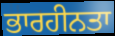
ਭਾਰਹੀਨਤਾ